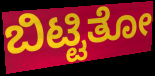
ಬಿಟ್ಟಿತೋ